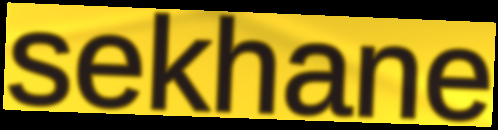
sekhane